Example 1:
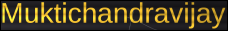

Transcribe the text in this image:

Muktichandravijay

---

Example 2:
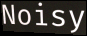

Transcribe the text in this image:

Noisy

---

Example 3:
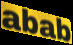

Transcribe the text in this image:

abab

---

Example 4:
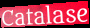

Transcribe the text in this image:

Catalase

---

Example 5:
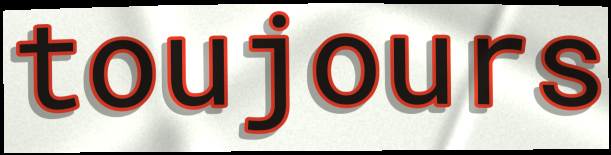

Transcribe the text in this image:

toujours